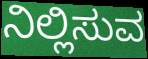
ನಿಲ್ಲಿಸುವ